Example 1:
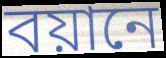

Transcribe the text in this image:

বয়ানে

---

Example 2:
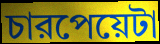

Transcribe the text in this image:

চারপেয়েটা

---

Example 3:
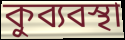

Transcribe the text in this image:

কুব্যবস্থা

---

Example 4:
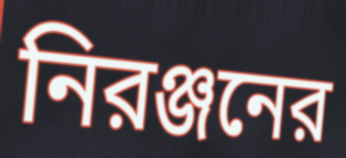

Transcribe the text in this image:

নিরঞ্জনের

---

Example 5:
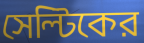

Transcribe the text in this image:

সেল্টিকের